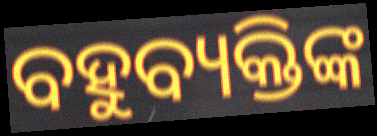
ବହୁବ୍ୟକ୍ତିଙ୍କ